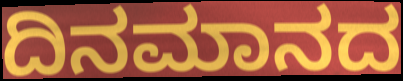
ದಿನಮಾನದ